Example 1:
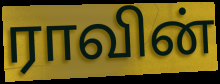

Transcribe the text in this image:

ராவின்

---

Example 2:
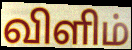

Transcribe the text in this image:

விளிம்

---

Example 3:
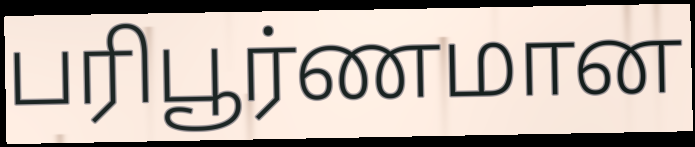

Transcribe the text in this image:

பரிபூர்ணமான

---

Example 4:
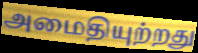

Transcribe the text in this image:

அமைதியுற்றது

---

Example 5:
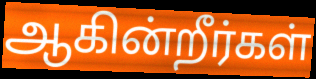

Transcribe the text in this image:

ஆகின்றீர்கள்